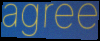
agree